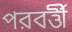
পরবর্ত্তী